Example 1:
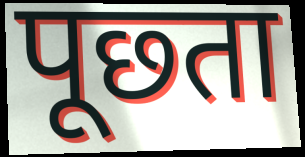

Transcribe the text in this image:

पूछ्ता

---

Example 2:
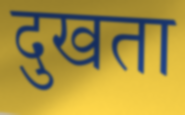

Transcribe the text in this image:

दुखता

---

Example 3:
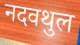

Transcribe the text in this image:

नदवथुल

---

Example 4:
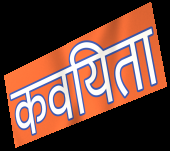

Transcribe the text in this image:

कवयिता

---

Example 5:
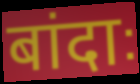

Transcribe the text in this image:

बांदाः